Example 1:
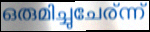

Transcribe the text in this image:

ഒരുമിച്ചുചേര്ന്ന്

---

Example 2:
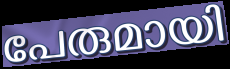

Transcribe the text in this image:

പേരുമായി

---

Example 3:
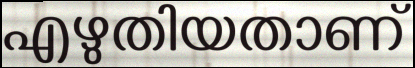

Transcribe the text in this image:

എഴുതിയതാണ്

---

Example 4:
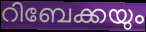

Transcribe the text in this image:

റിബേക്കയും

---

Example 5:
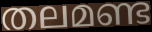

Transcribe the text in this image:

തലമണ്ട